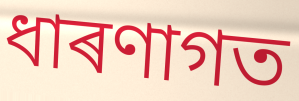
ধাৰণাগত